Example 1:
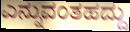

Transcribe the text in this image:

ಎನ್ನುವಂತಹದ್ದು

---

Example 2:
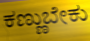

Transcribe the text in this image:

ಕಣ್ಣುಬೇಕು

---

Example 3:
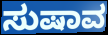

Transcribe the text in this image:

ಸುಷಾವ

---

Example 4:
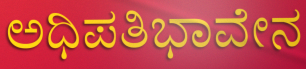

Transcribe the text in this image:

ಅಧಿಪತಿಭಾವೇನ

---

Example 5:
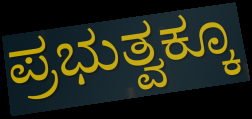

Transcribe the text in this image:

ಪ್ರಭುತ್ವಕ್ಕೂ